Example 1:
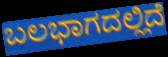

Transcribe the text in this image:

ಬಲಭಾಗದಲ್ಲಿದೆ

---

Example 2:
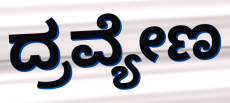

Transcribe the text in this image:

ದ್ರವ್ಯೇಣ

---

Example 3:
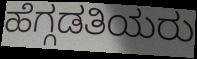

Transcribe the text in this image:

ಹೆಗ್ಗಡತಿಯರು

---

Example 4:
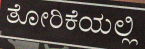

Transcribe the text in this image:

ತೋರಿಕೆಯಲ್ಲಿ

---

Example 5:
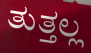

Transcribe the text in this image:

ತುತ್ತಲ್ಲ